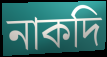
নাকদি